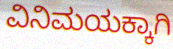
ವಿನಿಮಯಕ್ಕಾಗಿ